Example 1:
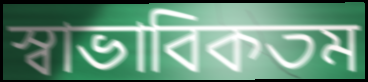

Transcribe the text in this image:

স্বাভাবিকতম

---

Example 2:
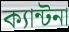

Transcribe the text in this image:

ক্যান্টনা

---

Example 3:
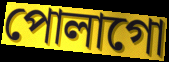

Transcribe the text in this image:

পোলাগো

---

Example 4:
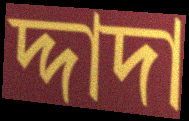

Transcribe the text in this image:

দ্দাদা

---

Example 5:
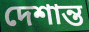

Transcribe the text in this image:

দেশান্ত